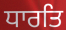
ਧਾਰਤਿ